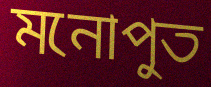
মনোপুত